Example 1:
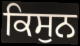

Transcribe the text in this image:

ਕਿਸੁਨ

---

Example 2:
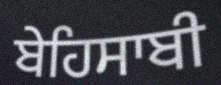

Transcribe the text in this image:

ਬੇਹਿਸਾਬੀ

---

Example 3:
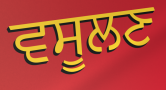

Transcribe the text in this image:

ਵਸੂਲਣ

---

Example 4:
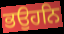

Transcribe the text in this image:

ਭਉਹਨਿ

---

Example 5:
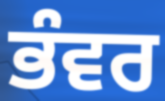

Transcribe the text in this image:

ਭੰਵਰ